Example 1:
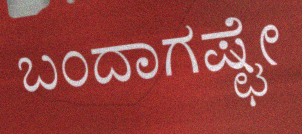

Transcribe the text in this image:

ಬಂದಾಗಷ್ಟೇ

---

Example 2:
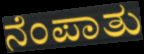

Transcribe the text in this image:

ನೆಂಪಾತು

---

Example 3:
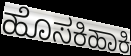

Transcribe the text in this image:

ಹೊಸಕಿಹಾಕಿ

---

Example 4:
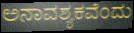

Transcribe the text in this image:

ಅನಾವಶ್ಯಕವೆಂದು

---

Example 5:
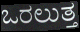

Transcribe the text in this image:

ಒರಲುತ್ತ